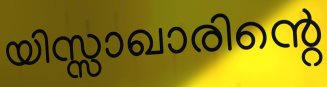
യിസ്സാഖാരിന്റെ